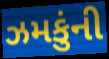
ઝમકુંની